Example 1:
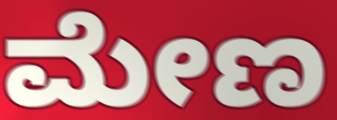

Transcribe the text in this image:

ಮೇಣ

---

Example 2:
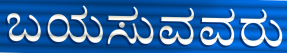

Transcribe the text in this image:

ಬಯಸುವವರು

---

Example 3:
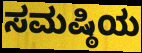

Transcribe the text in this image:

ಸಮಷ್ಠಿಯ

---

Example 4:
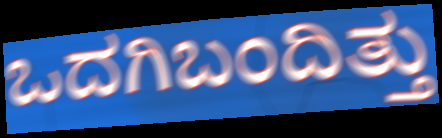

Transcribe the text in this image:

ಒದಗಿಬಂದಿತ್ತು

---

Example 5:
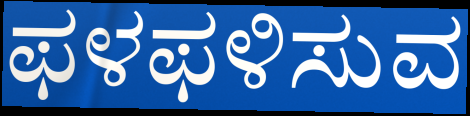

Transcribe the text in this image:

ಫಳಫಳಿಸುವ